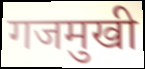
गजमुखी